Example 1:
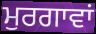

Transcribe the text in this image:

ਮੁਰਗਾਵਾਂ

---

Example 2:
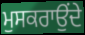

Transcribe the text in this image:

ਮੁਸਕਰਾਉਂਦੇ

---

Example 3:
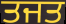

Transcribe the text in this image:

ਤਜਤ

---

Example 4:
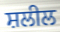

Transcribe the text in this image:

ਸ਼ਲੀਲ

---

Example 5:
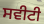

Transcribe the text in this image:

ਸਵੀਟੀ